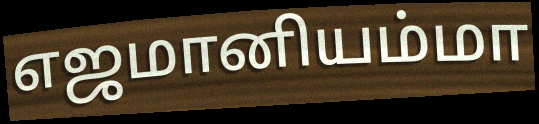
எஜமானியம்மா